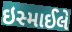
ઇસ્માઈલે